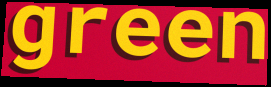
green